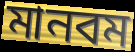
মানবম